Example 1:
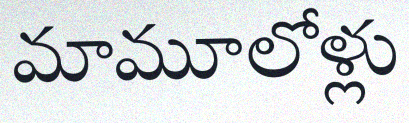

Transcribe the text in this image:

మామూలోళ్లు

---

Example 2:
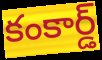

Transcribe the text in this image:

కంకార్డ్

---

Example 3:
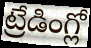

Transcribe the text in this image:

ట్రేడింగ్లో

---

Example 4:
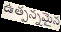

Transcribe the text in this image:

ఉత్పన్నమైన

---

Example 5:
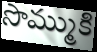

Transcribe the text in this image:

సొమ్ముకి